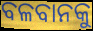
ବଳବାନକୁ